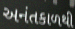
અનંતકાળથી